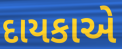
દાયકાએ